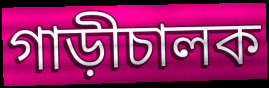
গাড়ীচালক